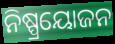
ନିଷ୍ପ୍ରୟୋଜନ